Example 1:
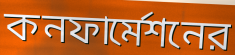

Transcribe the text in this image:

কনফার্মেশনের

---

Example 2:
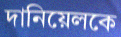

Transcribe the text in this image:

দানিয়েলকে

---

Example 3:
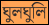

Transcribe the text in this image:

ঘুলঘুলি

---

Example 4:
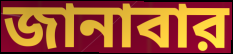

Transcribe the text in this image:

জানাবার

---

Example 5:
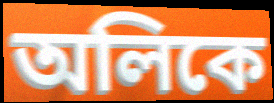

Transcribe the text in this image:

অলিকে